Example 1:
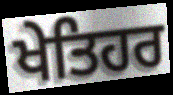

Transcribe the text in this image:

ਖੇਤਿਹਰ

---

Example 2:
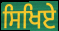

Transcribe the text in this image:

ਸਿਖਿਏ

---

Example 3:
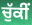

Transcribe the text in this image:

ਚੁੱਕੀਂ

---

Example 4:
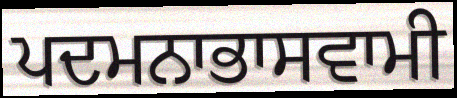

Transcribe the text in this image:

ਪਦਮਨਾਭਾਸਵਾਮੀ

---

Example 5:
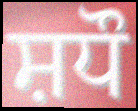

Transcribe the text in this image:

ਸ਼ਧੌ